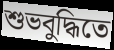
শুভবুদ্ধিতে